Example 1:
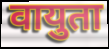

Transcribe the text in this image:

वायुता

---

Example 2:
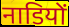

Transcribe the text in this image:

नाडियों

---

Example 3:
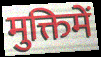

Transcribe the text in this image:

मुक्तिमें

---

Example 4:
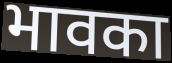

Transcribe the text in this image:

भावका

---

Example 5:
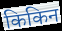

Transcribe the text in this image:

किकिन